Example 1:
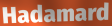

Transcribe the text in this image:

Hadamard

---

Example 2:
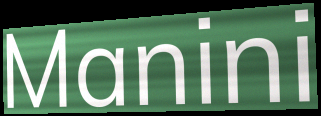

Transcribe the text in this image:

Manini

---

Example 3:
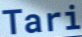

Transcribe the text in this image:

Tari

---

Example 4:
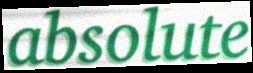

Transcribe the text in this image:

absolute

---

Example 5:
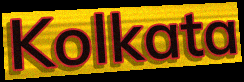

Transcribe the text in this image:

Kolkata